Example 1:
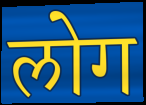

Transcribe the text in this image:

लोग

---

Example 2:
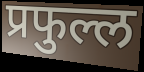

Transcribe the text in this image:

प्रफुल्ल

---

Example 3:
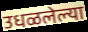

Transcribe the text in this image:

उधळलेल्या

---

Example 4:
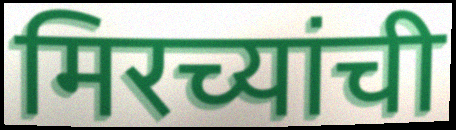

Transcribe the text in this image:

मिरच्यांची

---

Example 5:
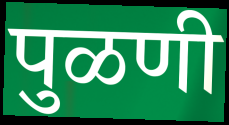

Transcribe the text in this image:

पुळणी